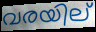
വരയില്